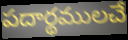
పదార్థములచే